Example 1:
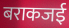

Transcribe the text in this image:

बराकजई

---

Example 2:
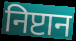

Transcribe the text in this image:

निप्टान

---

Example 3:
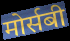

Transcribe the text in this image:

मोर्सबी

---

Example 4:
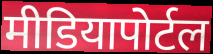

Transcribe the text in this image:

मीडियापोर्टल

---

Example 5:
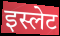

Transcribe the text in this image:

इस्लेट